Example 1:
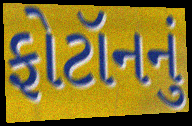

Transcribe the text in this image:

ફોટૉનનું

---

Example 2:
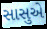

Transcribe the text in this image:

સાસુએ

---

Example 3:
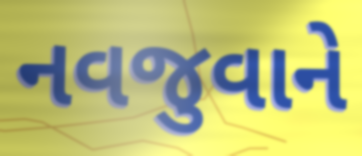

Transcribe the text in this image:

નવજુવાને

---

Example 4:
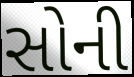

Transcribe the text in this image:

સોની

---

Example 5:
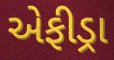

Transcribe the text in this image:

એફીડ્રા